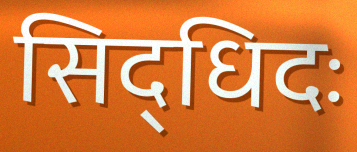
सिद्धिदः